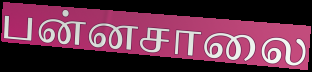
பன்னசாலை